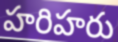
హరిహరు